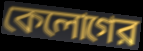
কেলোগের